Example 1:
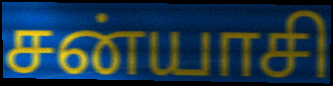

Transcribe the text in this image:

சன்யாசி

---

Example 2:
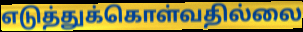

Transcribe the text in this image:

எடுத்துக்கொள்வதில்லை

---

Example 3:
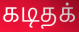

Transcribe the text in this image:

கடிதக்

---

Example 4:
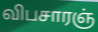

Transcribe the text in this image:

விபசாரஞ்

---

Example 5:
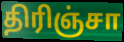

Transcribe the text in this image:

திரிஞ்சா